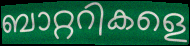
ബാറ്ററികളെ